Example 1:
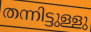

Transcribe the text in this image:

തന്നിട്ടുള്ളു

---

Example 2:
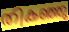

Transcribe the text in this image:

തികഞ്ഞു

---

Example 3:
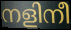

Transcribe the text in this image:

നളിനീ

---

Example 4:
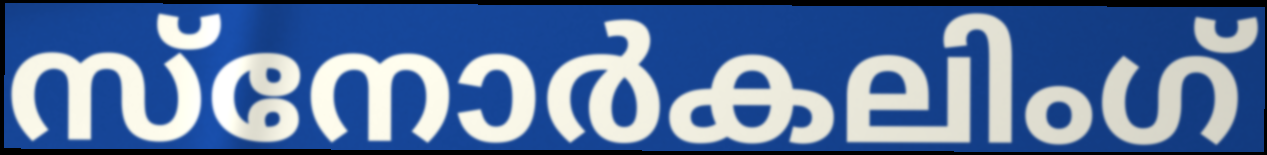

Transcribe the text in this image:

സ്നോർകലിംഗ്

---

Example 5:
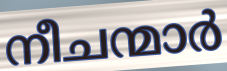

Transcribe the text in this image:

നീചന്മാർ